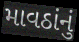
માવઠાંનું